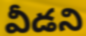
వీడని